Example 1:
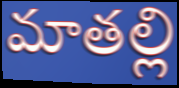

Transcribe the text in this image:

మాతల్లి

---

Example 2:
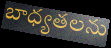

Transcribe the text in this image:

బాధ్యతలను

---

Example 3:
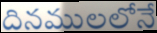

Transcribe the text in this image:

దినములలోనే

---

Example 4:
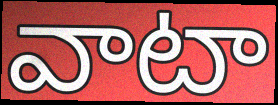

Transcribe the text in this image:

వాటా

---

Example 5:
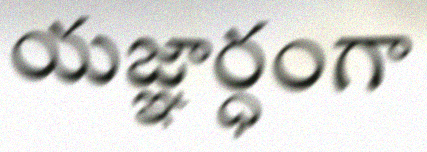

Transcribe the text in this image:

యజ్ఞార్ధంగా